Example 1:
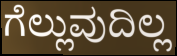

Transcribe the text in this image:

ಗೆಲ್ಲುವುದಿಲ್ಲ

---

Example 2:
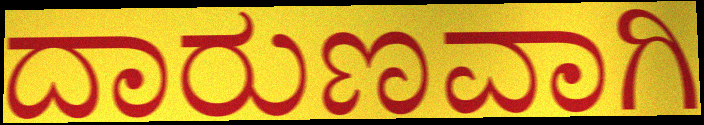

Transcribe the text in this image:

ದಾರುಣವಾಗಿ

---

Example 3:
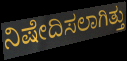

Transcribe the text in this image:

ನಿಷೇದಿಸಲಾಗಿತ್ತು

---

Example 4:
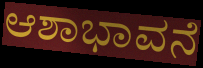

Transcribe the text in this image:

ಆಶಾಭಾವನೆ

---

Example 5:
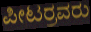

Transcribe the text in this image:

ಪೀಟರ್‍ರವರು